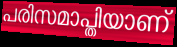
പരിസമാപ്തിയാണ്